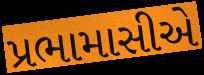
પ્રભામાસીએ